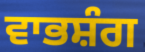
ਵਾਭਸ਼ੰਗ